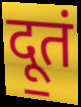
दू॒तं